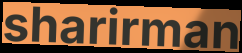
sharirman